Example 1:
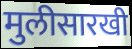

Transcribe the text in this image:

मुलीसारखी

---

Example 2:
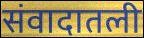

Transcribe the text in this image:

संवादातली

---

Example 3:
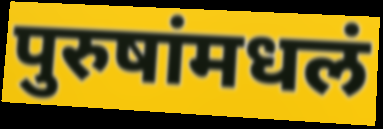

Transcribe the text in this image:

पुरुषांमधलं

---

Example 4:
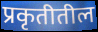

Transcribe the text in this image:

प्रकृतीतील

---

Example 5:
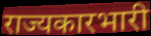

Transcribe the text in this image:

राज्यकारभारी